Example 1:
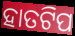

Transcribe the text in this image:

ହାତଟିପ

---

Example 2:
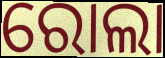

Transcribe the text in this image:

ରୋଲା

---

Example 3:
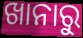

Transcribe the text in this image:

ଖାନାରୁ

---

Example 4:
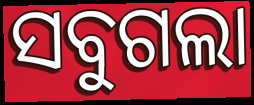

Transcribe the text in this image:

ସବୁଗଲା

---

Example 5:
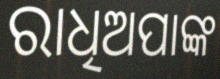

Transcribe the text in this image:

ରାଧିଅପାଙ୍କ